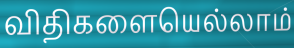
விதிகளையெல்லாம்